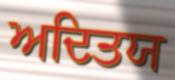
ਅਦਿਤਯ